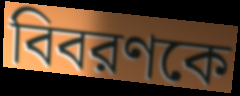
বিবরণকে